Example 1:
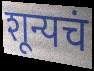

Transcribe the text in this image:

शून्यचं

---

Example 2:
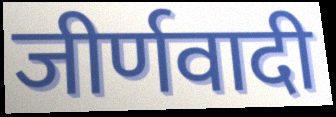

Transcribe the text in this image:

जीर्णवादी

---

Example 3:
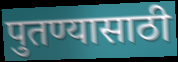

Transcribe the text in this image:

पुतण्यासाठी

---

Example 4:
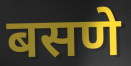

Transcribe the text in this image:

बसणे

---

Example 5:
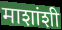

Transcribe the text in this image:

माशांशी